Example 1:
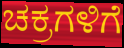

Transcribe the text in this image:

ಚಕ್ರಗಳಿಗೆ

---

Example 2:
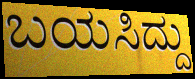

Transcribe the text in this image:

ಬಯಸಿದ್ದು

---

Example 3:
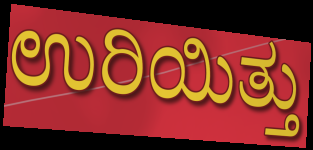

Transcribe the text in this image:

ಉರಿಯಿತ್ತು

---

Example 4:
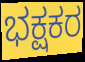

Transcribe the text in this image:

ಭಕ್ಷಕರ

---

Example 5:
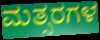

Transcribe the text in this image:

ಮತ್ಸರಗಳ